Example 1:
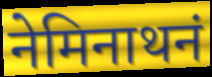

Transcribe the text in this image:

नेमिनाथनं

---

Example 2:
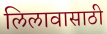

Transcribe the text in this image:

लिलावासाठी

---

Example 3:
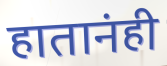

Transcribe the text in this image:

हातानंही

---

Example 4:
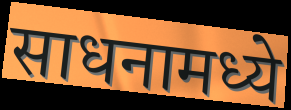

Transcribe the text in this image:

साधनामध्ये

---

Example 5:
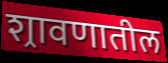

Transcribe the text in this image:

श्रावणातील